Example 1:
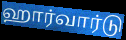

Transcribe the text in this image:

ஹார்வார்டு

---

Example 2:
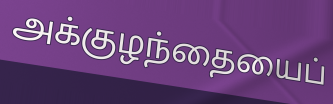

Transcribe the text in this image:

அக்குழந்தையைப்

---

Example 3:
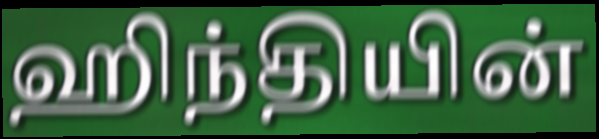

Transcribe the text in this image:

ஹிந்தியின்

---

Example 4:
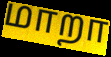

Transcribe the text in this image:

மாறா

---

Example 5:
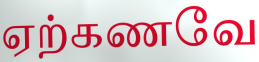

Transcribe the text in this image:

ஏற்கணவே